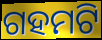
ଗହମଟି